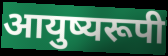
आयुष्यरूपी